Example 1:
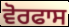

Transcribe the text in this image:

ਵੋਰਫਾਸ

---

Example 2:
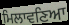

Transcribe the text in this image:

ਮਿਲਾਵਣਿਆ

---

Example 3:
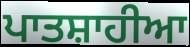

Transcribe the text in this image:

ਪਾਤਸ਼ਾਹੀਆ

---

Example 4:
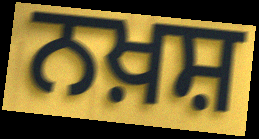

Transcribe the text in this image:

ਨਖ਼ਸ਼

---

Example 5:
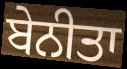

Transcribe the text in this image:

ਬੇਨੀਤਾ